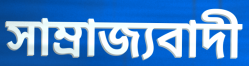
সাম্রাজ্যবাদী